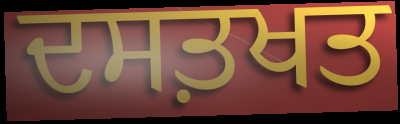
ਦਸਤ਼ਖਤ